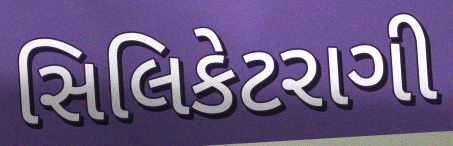
સિલિકેટરાગી